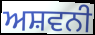
ਅਸ਼ਵਨੀ